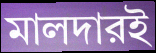
মালদারই